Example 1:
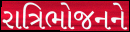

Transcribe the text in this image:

રાત્રિભોજનને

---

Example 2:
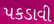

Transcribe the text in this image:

પકડાવી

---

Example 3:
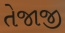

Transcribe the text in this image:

તેજાજી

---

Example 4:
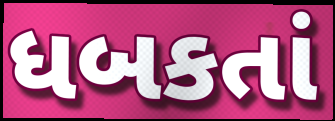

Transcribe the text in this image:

ધબકતાં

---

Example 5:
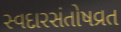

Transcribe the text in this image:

સ્વદારસંતોષવ્રત